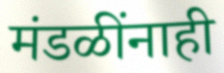
मंडळींनाही